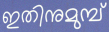
ഇതിനുമുമ്പ്